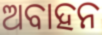
ଅବାହନ